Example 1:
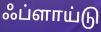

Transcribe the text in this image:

ஃப்ளாய்டு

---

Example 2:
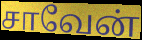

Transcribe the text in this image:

சாவேன்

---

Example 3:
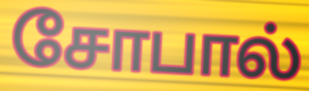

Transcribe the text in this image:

சோபால்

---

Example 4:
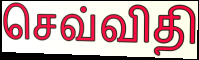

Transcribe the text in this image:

செவ்விதி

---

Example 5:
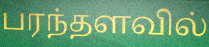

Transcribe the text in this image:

பரந்தளவில்